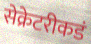
सेक्रेटरीकडं